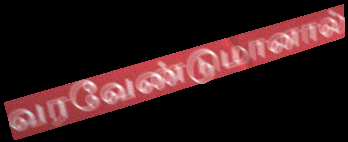
வரவேண்டுமானால்